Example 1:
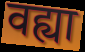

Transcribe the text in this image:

वह्या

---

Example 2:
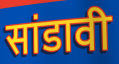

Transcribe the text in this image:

सांडावी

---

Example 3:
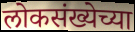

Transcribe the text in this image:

लोकसंख्येच्या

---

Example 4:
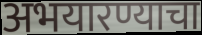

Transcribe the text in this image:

अभयारण्याचा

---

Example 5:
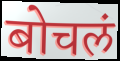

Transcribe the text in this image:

बोचलं